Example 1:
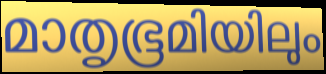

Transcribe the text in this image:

മാതൃഭൂമിയിലും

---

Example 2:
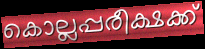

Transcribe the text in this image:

കൊല്ലപ്പരീക്ഷക്ക്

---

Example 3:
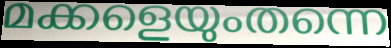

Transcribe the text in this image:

മക്കളെയുംതന്നെ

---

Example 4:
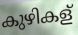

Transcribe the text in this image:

കുഴികള്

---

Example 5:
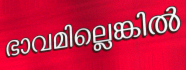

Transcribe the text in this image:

ഭാവമില്ലെങ്കിൽ